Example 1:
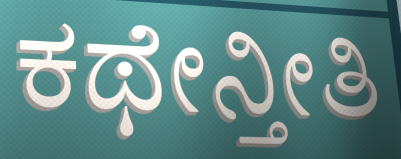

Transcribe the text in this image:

ಕಥೇನ್ತೀತಿ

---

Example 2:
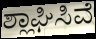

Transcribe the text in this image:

ಶ್ಲಾಘಿಸಿವೆ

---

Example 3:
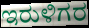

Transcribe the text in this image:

ಇರುಳಿಗರ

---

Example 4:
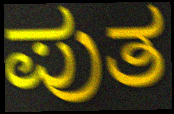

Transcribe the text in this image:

ಪುತ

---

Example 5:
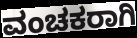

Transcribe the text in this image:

ವಂಚಕರಾಗಿ